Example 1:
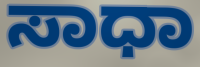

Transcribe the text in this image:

ಸಾಧಾ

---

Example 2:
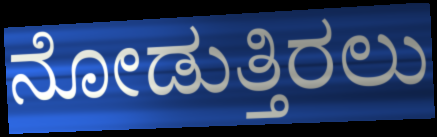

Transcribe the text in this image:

ನೋಡುತ್ತಿರಲು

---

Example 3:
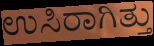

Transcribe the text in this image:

ಉಸಿರಾಗಿತ್ತು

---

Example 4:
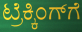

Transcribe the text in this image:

ಟ್ರೆಕ್ಕಿಂಗ್‌ಗೆ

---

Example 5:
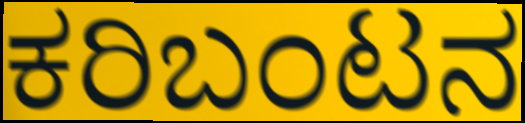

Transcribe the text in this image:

ಕರಿಬಂಟನ